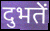
दुभतें